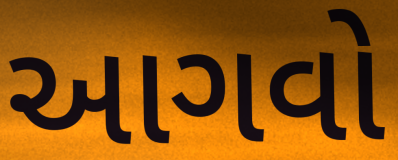
આગવો